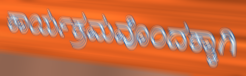
ಕಾರ್ಯಕ್ರಮವೊಂದಕ್ಕಾಗಿ